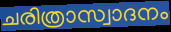
ചരിത്രാസ്വാദനം